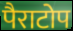
पैराटोप